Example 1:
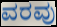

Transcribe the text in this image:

ವರವು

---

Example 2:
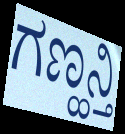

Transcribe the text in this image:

ಗಣ್ಹನ್ತಿ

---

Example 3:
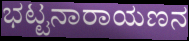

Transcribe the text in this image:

ಭಟ್ಟನಾರಾಯಣನ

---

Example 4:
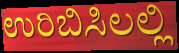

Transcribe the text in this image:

ಉರಿಬಿಸಿಲಲ್ಲಿ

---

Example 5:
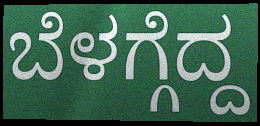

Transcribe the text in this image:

ಬೆಳಗ್ಗೆದ್ದ